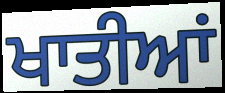
ਖਾਤੀਆਂ